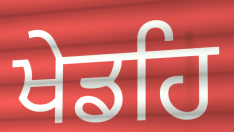
ਖੇਡਹਿ